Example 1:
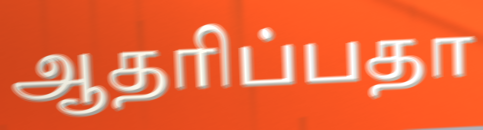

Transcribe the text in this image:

ஆதரிப்பதா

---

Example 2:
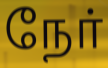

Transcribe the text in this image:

நேர்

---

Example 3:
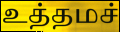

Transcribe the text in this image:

உத்தமச்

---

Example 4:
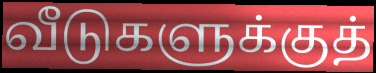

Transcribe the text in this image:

வீடுகளுக்குத்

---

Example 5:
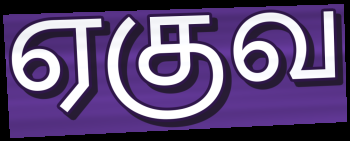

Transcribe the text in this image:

ஏகுவ